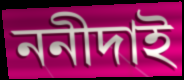
ননীদাই